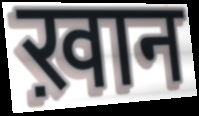
ख़ान